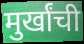
मुर्खांची